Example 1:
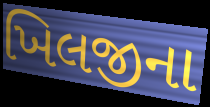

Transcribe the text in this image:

ખિલજીના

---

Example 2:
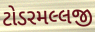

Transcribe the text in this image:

ટોડરમલ્લજી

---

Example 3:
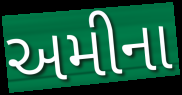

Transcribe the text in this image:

અમીના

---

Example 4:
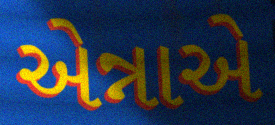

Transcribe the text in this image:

એન્નાએ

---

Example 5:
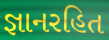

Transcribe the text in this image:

જ્ઞાનરહિત